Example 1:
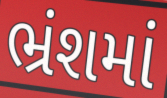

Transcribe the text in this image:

ભ્રંશમાં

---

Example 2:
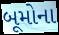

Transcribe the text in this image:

બૂમોના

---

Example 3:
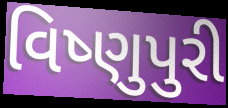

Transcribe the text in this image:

વિષ્ણુપુરી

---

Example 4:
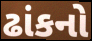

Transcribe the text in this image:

ઢાંકનો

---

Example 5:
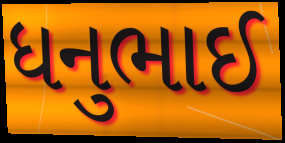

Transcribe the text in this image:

ધનુભાઈ